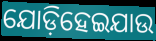
ଯୋଡ଼ିହେଇଯାଉ